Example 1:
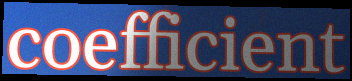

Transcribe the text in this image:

coefficient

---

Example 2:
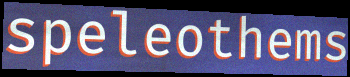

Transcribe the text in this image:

speleothems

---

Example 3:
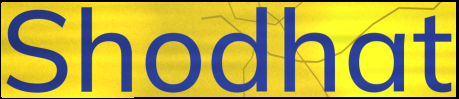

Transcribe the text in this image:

Shodhat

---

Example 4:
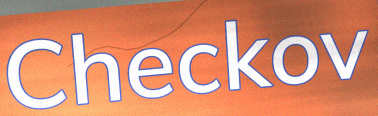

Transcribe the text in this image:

Checkov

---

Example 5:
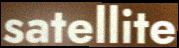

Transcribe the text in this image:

satellite